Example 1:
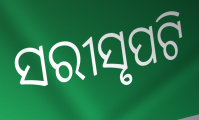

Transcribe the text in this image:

ସରୀସୃପଟି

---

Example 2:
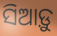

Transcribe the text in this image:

ସିଆଡ଼ୁ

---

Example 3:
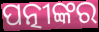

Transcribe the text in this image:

ପତ୍ନୀଙ୍କର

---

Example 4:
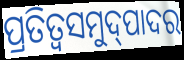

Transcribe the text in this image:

ପ୍ରତିତ୍ଵସମୁଦ୍‌ପାଦର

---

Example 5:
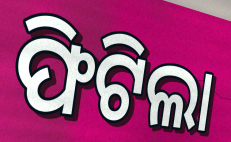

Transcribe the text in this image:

ଫିଟିଲା